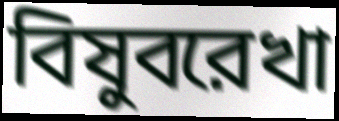
বিষুবরেখা